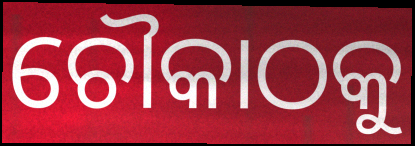
ଚୌକାଠକୁ